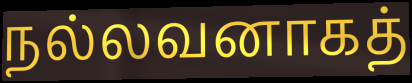
நல்லவனாகத்